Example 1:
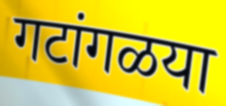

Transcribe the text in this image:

गटांगळया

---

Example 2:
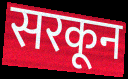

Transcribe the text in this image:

सरकून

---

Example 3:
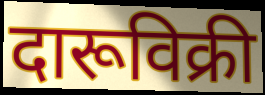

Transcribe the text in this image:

दारूविक्री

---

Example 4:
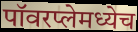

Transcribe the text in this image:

पॉवरप्लेमध्येच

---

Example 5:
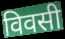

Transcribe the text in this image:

विवसी